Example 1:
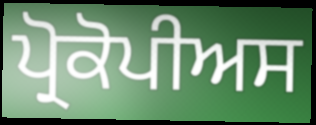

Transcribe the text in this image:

ਪ੍ਰੋਕੋਪੀਅਸ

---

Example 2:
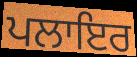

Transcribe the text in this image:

ਪਲਾਇਰ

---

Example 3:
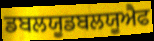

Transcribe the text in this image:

ਡਬਲਯੂਡਬਲਯੂਐਫ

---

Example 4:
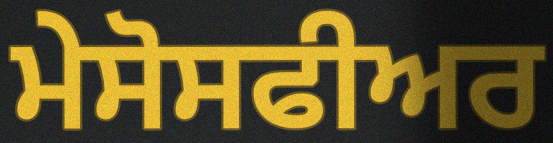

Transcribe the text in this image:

ਮੇਸੋਸਫੀਅਰ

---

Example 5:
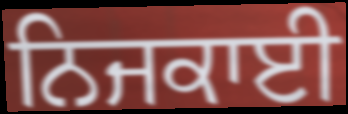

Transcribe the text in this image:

ਨਿਜਕਾਈ